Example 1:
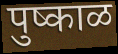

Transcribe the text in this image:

पुष्काळ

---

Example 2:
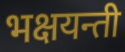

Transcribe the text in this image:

भक्षयन्ती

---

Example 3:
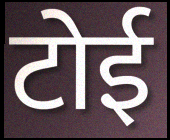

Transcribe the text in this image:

टोई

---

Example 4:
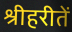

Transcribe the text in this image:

श्रीहरीतें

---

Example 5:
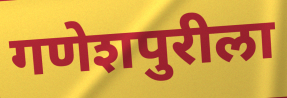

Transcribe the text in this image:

गणेशपुरीला